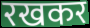
रखकर